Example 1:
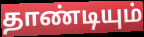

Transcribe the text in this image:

தாண்டியும்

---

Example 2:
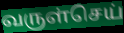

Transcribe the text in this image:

வருள்செய்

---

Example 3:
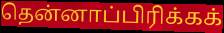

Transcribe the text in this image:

தென்னாப்பிரிக்கக்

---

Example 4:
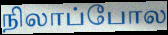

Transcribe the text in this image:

நிலாப்போல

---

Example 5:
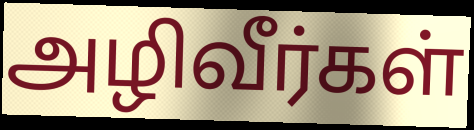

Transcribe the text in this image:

அழிவீர்கள்